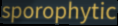
sporophytic